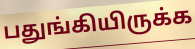
பதுங்கியிருக்க